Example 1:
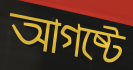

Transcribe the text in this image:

আগষ্টে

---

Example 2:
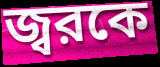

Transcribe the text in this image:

জ্বরকে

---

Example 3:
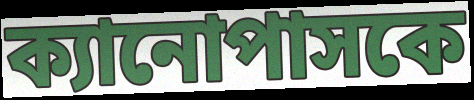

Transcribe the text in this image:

ক্যানোপাসকে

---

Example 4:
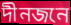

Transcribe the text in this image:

দীনজনে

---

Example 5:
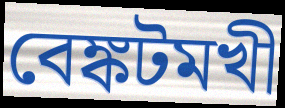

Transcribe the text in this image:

বেঙ্কটমখী